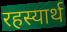
रहस्यार्थ